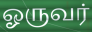
ஓருவர்